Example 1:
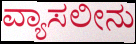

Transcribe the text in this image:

ವ್ಯಾಸಲೀನು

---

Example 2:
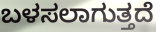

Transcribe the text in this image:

ಬಳಸಲಾಗುತ್ತದೆ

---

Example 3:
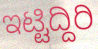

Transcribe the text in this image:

ಇಟ್ಟಿದ್ದಿರಿ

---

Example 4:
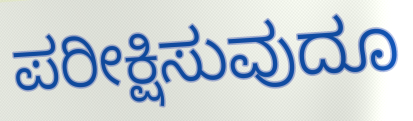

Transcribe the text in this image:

ಪರೀಕ್ಷಿಸುವುದೂ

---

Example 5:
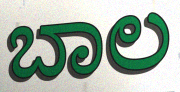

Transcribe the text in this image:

ಬಾಲ